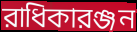
রাধিকারঞ্জন